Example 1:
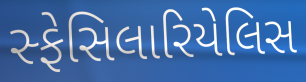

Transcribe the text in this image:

સ્ફેસિલારિયેલિસ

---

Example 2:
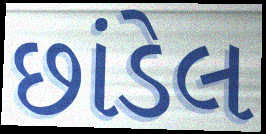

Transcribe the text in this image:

છાંડેલ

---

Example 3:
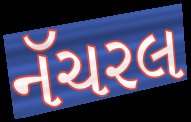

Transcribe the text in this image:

નૅચરલ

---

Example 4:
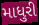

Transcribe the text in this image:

માધુરી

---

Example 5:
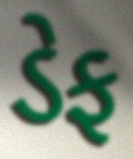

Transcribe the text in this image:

ડેફ